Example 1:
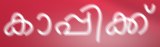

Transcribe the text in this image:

കാപ്പിക്ക്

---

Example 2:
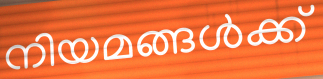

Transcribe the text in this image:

നിയമങ്ങൾക്ക്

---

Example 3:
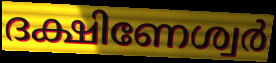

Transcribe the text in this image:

ദക്ഷിണേശ്വർ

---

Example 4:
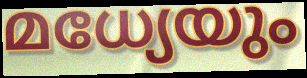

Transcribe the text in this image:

മധ്യേയും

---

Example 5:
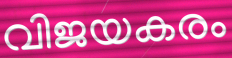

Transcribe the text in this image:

വിജയകരം